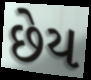
છેય